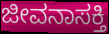
ಜೀವನಾಸಕ್ತಿ